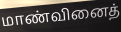
மாண்வினைத்